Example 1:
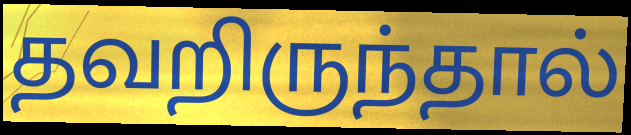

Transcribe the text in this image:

தவறிருந்தால்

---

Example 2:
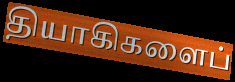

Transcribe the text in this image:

தியாகிகளைப்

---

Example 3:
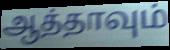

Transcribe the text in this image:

ஆத்தாவும்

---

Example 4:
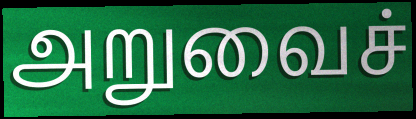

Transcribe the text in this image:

அறுவைச்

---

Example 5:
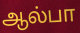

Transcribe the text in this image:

ஆல்பா